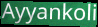
Ayyankoli